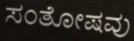
ಸಂತೋಷವು